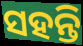
ସହନ୍ତି